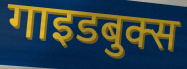
गाइडबुक्स